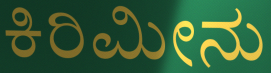
ಕಿರಿಮೀನು